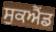
ਸੁਕਐਂਡ